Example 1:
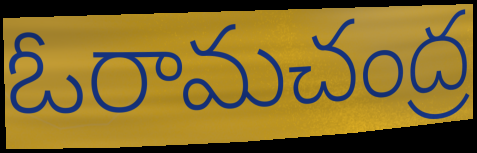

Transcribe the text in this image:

ఓరామచంద్ర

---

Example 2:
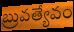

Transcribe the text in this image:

బ్రువత్యేవం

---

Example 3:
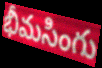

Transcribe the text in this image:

భీమసింగు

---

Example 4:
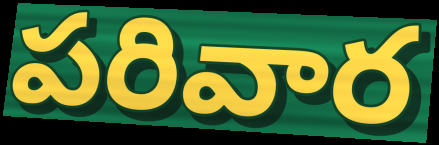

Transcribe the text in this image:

పరివార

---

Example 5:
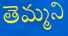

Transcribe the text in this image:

తెమ్మని